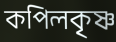
কপিলকৃষ্ণ